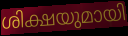
ശിക്ഷയുമായി